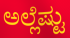
ಅಲ್ಲೆಷ್ಟು